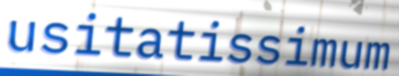
usitatissimum